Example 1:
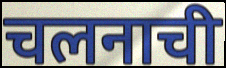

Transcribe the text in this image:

चलनाची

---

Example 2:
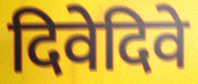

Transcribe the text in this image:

दिवेदिवे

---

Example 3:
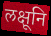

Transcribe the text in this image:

लक्षूनि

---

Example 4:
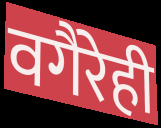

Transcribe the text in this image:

वगैरेही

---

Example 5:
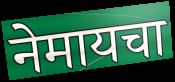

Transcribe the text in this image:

नेमायचा